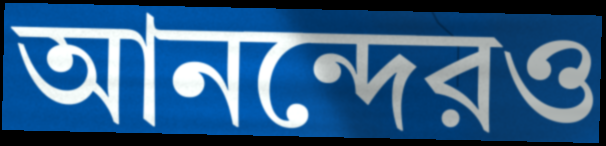
আনন্দেরও